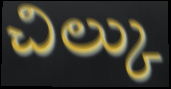
చిల్కు